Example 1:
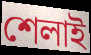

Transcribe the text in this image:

শেলাই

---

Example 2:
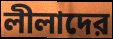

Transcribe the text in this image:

লীলাদের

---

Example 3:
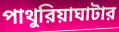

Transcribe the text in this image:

পাথুরিয়াঘাটার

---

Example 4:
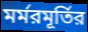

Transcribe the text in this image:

মর্মরমূর্তির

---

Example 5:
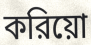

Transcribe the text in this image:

করিয়ো